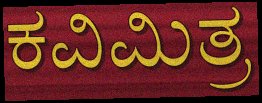
ಕವಿಮಿತ್ರ